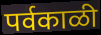
पर्वकाळी